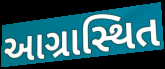
આગ્રાસ્થિત